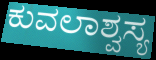
ಕುವಲಾಶ್ವಸ್ಯ